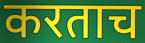
करताच